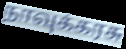
நாவுக்கரசு